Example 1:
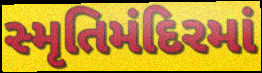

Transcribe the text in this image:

સ્મૃતિમંદિરમાં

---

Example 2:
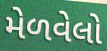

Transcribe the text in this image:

મેળવેલો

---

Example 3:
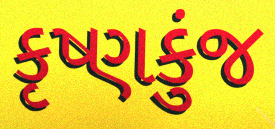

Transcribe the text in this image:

કૃષ્ણકુંજ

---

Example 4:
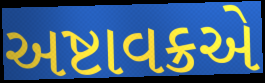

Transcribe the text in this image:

અષ્ટાવક્રએ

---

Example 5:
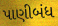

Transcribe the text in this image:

પાણીબંધ